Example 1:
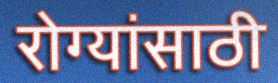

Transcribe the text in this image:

रोग्यांसाठी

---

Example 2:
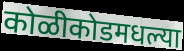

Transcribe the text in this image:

कोळीकोडमधल्या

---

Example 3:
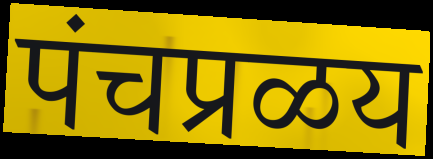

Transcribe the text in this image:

पंचप्रळय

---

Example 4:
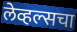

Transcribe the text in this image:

लेव्हल्सचा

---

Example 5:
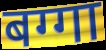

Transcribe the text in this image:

बग्गा